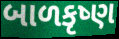
બાળકૃષ્ણ